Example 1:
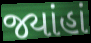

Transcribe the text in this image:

જ્યાંહાં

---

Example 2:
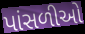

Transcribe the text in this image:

પાંસળીઓ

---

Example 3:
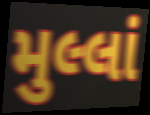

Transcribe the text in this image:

મુલ્લાં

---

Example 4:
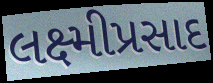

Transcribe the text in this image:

લક્ષ્મીપ્રસાદ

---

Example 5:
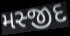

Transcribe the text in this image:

મસ્જીદ